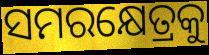
ସମରକ୍ଷେତ୍ରକୁ